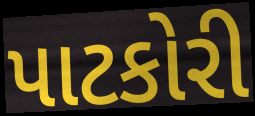
પાટકોરી